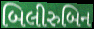
બિલીરુબિન